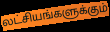
லட்சியங்களுக்கும்